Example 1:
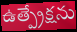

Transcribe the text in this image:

ఉత్ప్రేక్షను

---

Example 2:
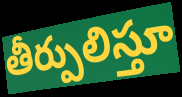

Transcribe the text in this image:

తీర్పులిస్తూ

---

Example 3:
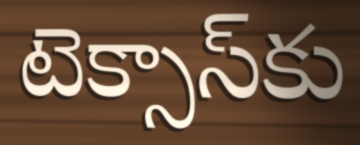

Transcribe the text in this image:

టెక్సాస్‌కు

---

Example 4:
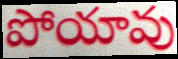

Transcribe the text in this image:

పోయావు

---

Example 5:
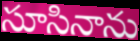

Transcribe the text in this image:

సూసినాను